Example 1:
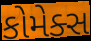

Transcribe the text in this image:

કોમેક્સ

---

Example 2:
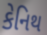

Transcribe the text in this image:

કેનિથ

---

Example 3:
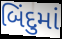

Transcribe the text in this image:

બિંદુમાં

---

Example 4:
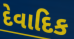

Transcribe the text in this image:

દેવાદિક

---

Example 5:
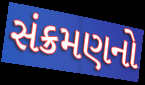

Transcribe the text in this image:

સંક્રમણનો